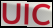
UIC